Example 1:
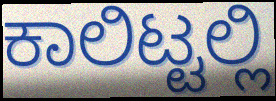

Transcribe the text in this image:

ಕಾಲಿಟ್ಟಲ್ಲಿ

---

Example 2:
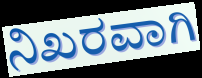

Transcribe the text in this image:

ನಿಖರವಾಗಿ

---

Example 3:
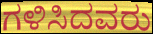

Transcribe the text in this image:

ಗಳಿಸಿದವರು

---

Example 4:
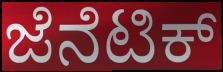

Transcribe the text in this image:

ಜೆನೆಟಿಕ್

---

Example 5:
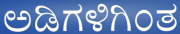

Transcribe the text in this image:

ಅಡಿಗಳಿಗಿಂತ